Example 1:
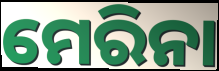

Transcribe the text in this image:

ମେରିନା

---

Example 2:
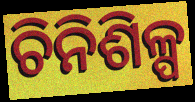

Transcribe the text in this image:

ଚିନିଶିଳ୍ପ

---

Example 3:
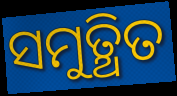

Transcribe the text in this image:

ସମୁତ୍ଥିତ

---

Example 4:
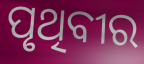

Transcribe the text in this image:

ପୃଥିବୀର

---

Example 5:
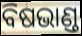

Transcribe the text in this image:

ବିଷଭାଣ୍ଡ